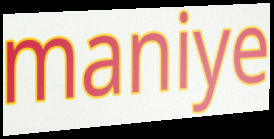
maniye